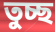
তুচ্ছ